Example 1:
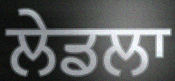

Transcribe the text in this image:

ਲੇਡਲਾ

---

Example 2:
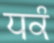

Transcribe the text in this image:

ਧਕੰ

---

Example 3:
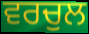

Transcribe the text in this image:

ਵਰਚੁਲ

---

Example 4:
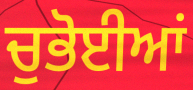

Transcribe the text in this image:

ਚੁਭੋਈਆਂ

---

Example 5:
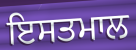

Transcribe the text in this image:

ਇਸਤਮਾਲ